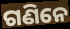
ଗଣିନେ